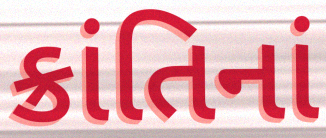
ક્રાંતિનાં